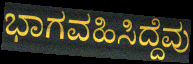
ಭಾಗವಹಿಸಿದ್ದೆವು